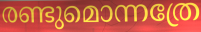
രണ്ടുമൊന്നത്രേ